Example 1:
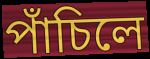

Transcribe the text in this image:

পাঁচিলে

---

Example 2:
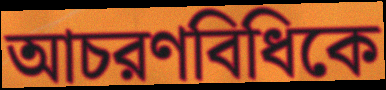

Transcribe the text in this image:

আচরণবিধিকে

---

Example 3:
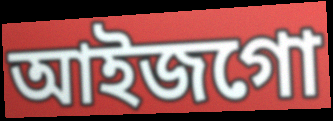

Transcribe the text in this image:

আইজগো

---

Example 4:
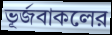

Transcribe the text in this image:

ভূর্জবাকলের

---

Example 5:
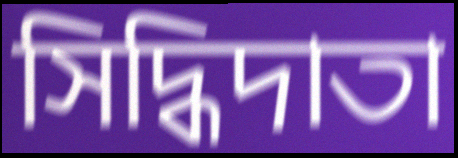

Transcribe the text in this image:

সিদ্ধিদাতা